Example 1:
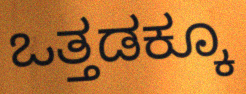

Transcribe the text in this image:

ಒತ್ತಡಕ್ಕೂ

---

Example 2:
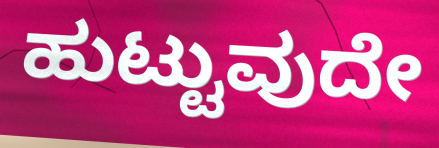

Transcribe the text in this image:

ಹುಟ್ಟುವುದೇ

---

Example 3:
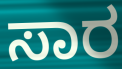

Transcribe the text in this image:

ಸಾರ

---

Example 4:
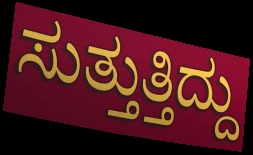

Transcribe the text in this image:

ಸುತ್ತುತ್ತಿದ್ದು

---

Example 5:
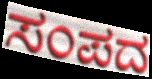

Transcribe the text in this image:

ಸಂಪದ